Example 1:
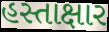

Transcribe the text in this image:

હસ્તાક્ષાર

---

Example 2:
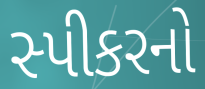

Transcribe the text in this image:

સ્પીકરનો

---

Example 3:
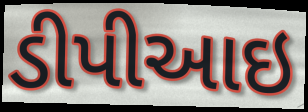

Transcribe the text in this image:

ડીપીઆઇ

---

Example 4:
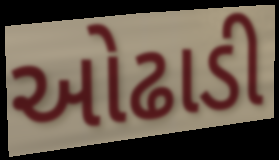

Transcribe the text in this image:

ઓઢાડી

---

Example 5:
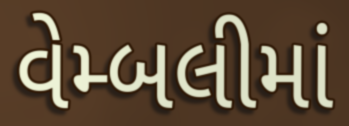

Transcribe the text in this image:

વેમ્બલીમાં